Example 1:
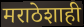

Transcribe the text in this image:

मराठेशाही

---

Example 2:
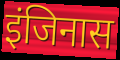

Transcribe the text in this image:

इंजिनास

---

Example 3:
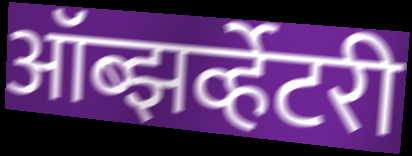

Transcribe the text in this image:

ऑब्झर्व्हेटरी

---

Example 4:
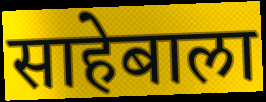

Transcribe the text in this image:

साहेबाला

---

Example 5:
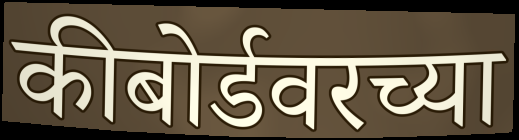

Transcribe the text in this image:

कीबोर्डवरच्या